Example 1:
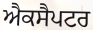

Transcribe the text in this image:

ਐਕਸੈਪਟਰ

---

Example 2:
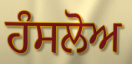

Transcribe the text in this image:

ਹੰਸਲੋਅ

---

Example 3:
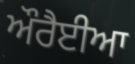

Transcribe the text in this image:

ਔਰੈਈਆ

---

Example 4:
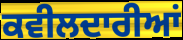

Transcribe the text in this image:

ਕਵੀਲਦਾਰੀਆਂ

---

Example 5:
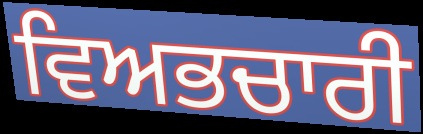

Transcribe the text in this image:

ਵਿਅਭਚਾਰੀ